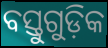
ବସ୍ତୁଗୁଡ଼ିକ